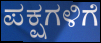
ಪಕ್ಷಗಳಿಗೆ